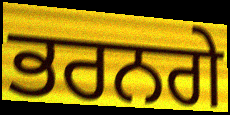
ਭਰਨਗੇ